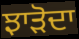
ਝਾੜੋਦਾ